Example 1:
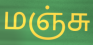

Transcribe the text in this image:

மஞ்சு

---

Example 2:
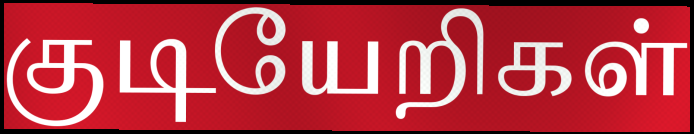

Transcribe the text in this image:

குடியேறிகள்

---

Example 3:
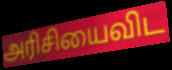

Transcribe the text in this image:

அரிசியைவிட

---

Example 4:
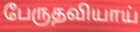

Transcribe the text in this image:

பேருதவியாய்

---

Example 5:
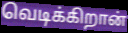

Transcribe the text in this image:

வெடிக்கிறான்